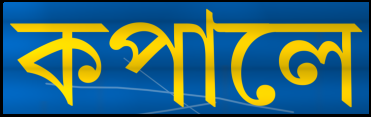
কপালে